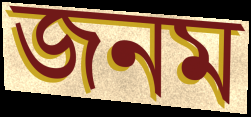
জনম